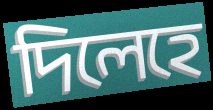
দিলেহে